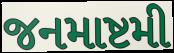
જનમાષ્ટમી